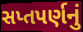
સપ્તપર્ણનું